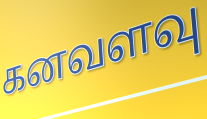
கனவளவு